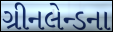
ગ્રીનલેન્ડના